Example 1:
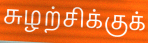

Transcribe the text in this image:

சுழற்சிக்குக்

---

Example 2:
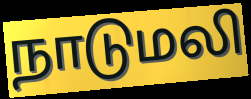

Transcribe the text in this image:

நாடுமலி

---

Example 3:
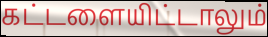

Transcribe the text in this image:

கட்டளையிட்டாலும்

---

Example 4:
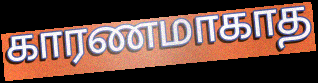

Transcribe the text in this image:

காரணமாகாத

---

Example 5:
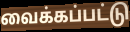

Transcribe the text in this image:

வைக்கப்பட்டு